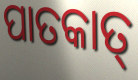
ପାତକାତ୍